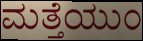
ಮತ್ತೆಯುಂ